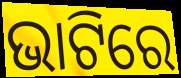
ଭାଟିରେ